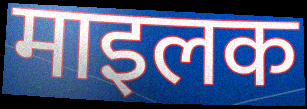
माइलक